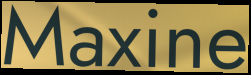
Maxine